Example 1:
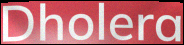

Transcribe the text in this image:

Dholera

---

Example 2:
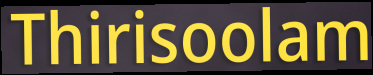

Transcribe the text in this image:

Thirisoolam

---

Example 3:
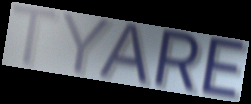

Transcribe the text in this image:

TYARE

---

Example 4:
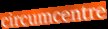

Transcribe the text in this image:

circumcentre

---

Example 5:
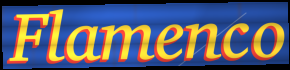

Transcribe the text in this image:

Flamenco